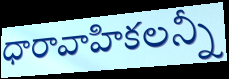
ధారావాహికలన్నీ